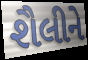
શૈલીને